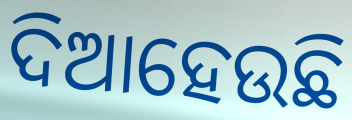
ଦିଆହେଉଛି